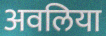
अवलिया